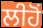
ਲੀਹੋਂ